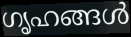
ഗൃഹങ്ങൾ